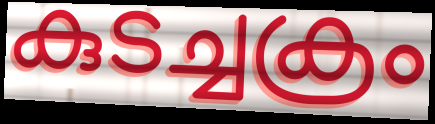
കുടച്ചക്രം